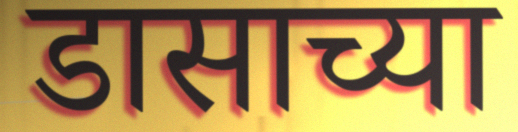
डासाच्या